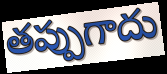
తప్పుగాదు